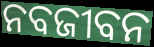
ନବଜୀବନ